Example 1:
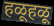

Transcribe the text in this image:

हळूहळू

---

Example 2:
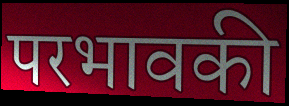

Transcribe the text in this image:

परभावकी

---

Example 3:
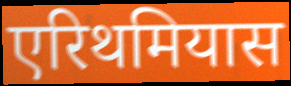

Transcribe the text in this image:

एरिथमियास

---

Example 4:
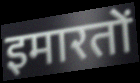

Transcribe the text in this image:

इमारतों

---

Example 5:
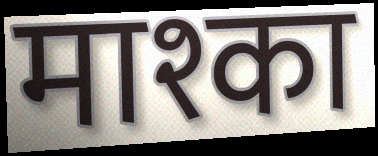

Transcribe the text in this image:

माश्का